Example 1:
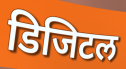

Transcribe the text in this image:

डिजिटल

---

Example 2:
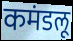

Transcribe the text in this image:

कमंडलू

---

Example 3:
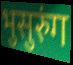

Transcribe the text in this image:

भुसुरुंग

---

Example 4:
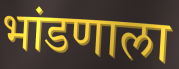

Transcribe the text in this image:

भांडणाला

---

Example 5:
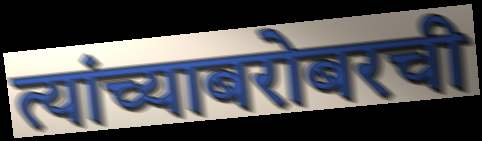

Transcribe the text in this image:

त्यांच्याबरोबरची